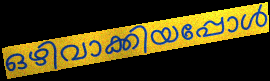
ഒഴിവാക്കിയപ്പോൾ